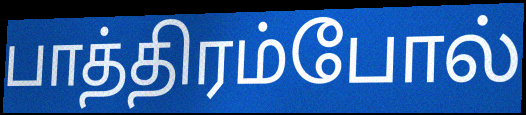
பாத்திரம்போல்